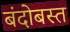
बंदोबस्त